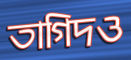
তাগিদও